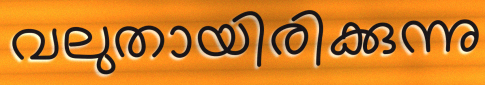
വലുതായിരിക്കുന്നു